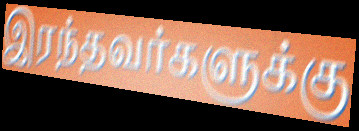
இரந்தவர்களுக்கு